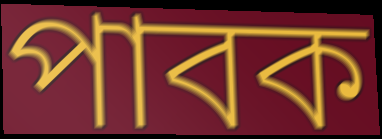
পাবক